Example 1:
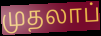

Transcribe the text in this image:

முதலாப்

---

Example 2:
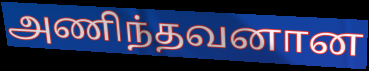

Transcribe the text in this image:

அணிந்தவனான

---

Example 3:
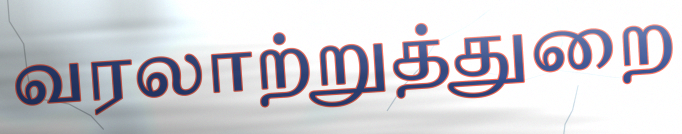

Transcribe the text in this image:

வரலாற்றுத்துறை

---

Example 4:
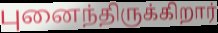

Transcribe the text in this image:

புனைந்திருக்கிறார்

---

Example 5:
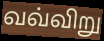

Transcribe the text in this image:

வவ்விறு